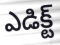
ఎడిక్ట్